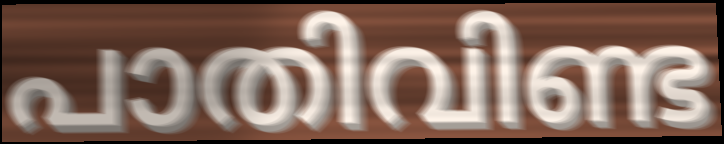
പാതിവിണ്ട